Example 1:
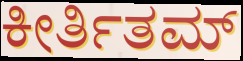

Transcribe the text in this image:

ಕೀರ್ತಿತಮ್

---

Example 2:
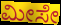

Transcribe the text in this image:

ಮೀಸೇ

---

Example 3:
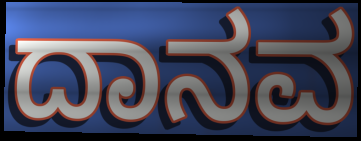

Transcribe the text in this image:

ದಾನವ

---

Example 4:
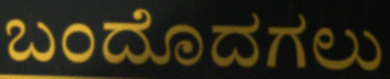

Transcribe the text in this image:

ಬಂದೊದಗಲು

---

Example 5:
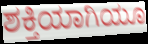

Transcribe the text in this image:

ಶಕ್ತಿಯಾಗಿಯೂ